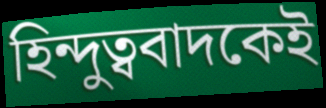
হিন্দুত্ববাদকেই